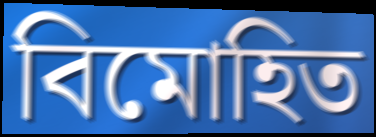
বিমোহিত